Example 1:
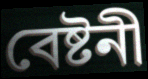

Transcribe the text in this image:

বেষ্টনী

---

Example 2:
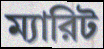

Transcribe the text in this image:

ম্যারিট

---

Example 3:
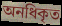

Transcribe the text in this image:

অনধিকৃত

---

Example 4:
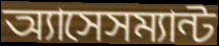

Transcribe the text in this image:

অ্যাসেসম্যান্ট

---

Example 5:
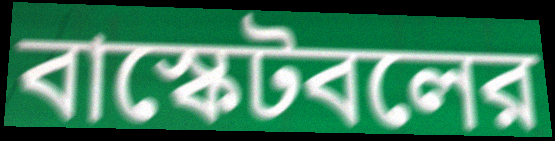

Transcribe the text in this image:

বাস্কেটবলের